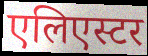
एलिएस्टर